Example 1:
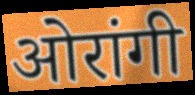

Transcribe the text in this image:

ओरांगी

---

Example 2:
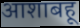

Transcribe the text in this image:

आशाबहू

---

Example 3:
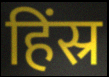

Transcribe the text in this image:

हिंस्र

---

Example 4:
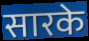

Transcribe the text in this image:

सारके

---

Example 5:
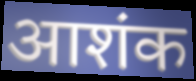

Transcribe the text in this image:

आशंक